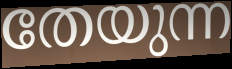
തേയുന്ന